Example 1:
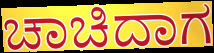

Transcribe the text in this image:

ಚಾಚಿದಾಗ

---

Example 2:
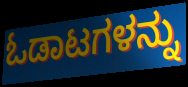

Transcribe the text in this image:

ಓಡಾಟಗಳನ್ನು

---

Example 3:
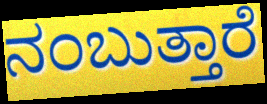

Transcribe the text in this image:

ನಂಬುತ್ತಾರೆ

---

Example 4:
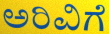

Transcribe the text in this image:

ಅರಿವಿಗೆ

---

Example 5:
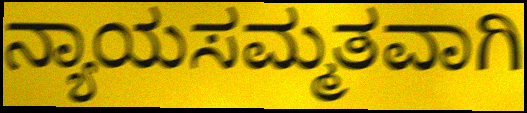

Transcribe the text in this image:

ನ್ಯಾಯಸಮ್ಮತವಾಗಿ